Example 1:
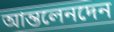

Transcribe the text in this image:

আন্তলেনদেন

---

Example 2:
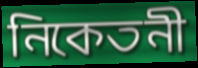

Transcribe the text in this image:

নিকেতনী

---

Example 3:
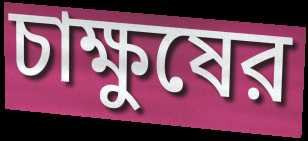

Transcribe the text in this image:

চাক্ষুষের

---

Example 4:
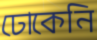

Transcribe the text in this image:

ঢোকেনি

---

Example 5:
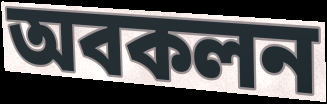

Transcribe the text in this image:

অবকলন